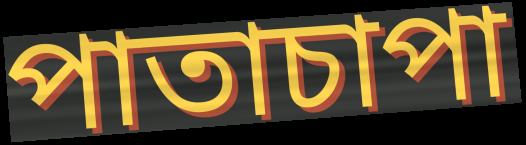
পাতাচাপা